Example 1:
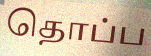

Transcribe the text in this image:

தொப்ப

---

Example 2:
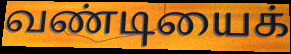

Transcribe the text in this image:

வண்டியைக்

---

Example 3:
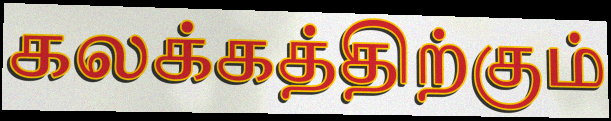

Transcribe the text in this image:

கலக்கத்திற்கும்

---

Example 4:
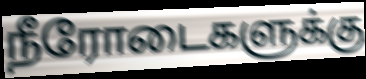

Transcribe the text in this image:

நீரோடைகளுக்கு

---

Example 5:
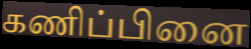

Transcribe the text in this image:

கணிப்பினை